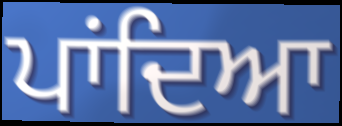
ਪਾਂਦਿਆ